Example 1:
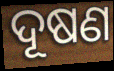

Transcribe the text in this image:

ଦୂଷଣ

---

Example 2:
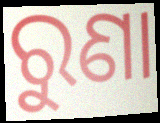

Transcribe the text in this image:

ରୁଣା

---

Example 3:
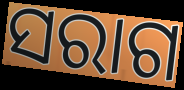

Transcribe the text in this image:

ସରାଗ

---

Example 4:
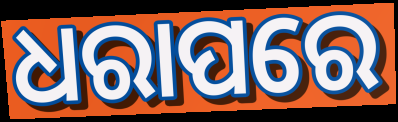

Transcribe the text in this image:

ଧରାପରେ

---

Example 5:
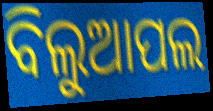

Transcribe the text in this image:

ବିଲୁଆପଲ